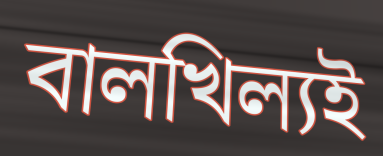
বালখিল্যই